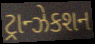
ટ્રાન્ઝેકશન